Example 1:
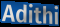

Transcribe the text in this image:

Adithi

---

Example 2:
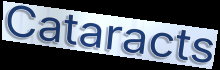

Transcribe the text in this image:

Cataracts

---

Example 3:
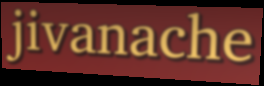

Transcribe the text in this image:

jivanache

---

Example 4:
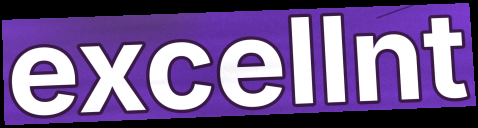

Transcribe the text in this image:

excellnt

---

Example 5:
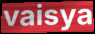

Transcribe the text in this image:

vaisya